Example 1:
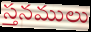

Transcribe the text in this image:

స్తనములు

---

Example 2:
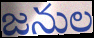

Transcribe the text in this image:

జనుల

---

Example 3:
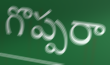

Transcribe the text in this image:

గొప్పరా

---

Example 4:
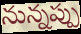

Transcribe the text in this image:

నున్నప్పు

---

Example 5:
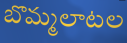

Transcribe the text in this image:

బొమ్మలాటల